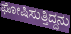
ಘೋಷಿಸುತ್ತಿದ್ದನು